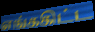
எங்ககிட்ட